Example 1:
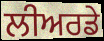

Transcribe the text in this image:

ਲੀਅਰਡੇ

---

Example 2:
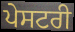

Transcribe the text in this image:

ਪੇਸਟਰੀ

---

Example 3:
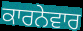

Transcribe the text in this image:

ਕਾਰਨੇਵਾਰ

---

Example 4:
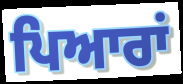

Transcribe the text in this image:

ਪਿਆਰਾਂ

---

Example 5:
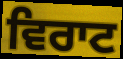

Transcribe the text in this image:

ਵਿਰਾਟ